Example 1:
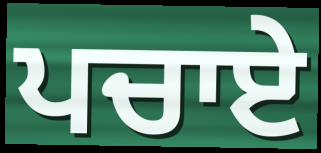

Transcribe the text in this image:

ਪਚਾਏ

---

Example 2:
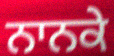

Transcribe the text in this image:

ਨਾਨਕੇ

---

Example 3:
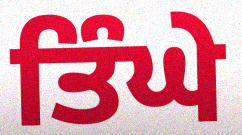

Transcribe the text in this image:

ਤਿੰਘੇ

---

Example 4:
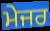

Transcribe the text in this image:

ਮੇਜਰ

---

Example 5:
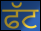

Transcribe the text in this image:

ਫੱਟ